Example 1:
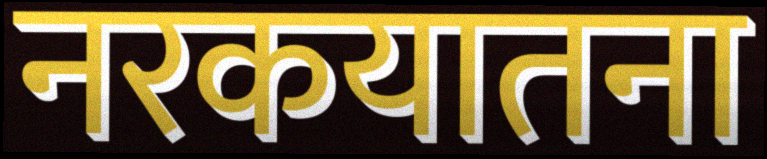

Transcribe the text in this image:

नरकयातना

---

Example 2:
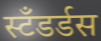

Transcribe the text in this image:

स्टँडर्डस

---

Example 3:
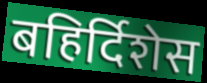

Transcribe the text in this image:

बहिर्दिशेस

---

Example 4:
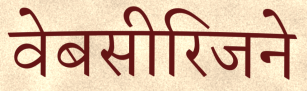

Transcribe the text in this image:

वेबसीरिजने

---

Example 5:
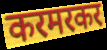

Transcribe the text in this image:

करमरकर